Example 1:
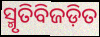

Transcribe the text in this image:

ସ୍ମୃତିବିଜଡ଼ିତ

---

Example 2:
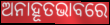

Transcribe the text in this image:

ଅନାହୂତଭାବରେ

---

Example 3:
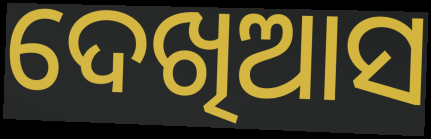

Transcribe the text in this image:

ଦେଖିଆସ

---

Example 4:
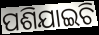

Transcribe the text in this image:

ପଶିଯାଇଚି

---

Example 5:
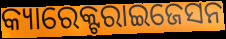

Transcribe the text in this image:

କ୍ୟାରେକ୍ଟରାଇଜେସନ